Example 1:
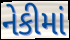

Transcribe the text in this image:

નેકીમાં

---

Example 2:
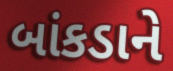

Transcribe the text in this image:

બાંકડાને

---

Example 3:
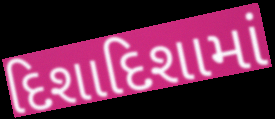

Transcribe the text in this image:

દિશાદિશામાં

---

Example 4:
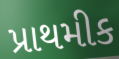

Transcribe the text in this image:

પ્રાથમીક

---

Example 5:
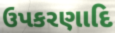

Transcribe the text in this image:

ઉપકરણાદિ